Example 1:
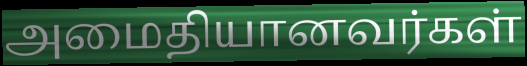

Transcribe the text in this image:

அமைதியானவர்கள்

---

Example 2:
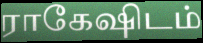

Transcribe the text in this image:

ராகேஷிடம்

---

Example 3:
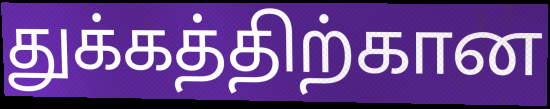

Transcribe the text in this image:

துக்கத்திற்கான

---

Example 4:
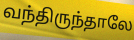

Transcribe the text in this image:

வந்திருந்தாலே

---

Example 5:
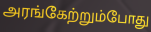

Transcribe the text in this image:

அரங்கேற்றும்போது